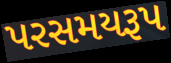
પરસમયરૂપ